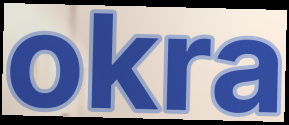
okra